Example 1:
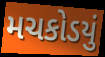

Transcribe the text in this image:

મચકોડયું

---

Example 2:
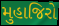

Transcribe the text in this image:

મુહાજિરો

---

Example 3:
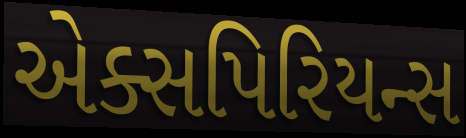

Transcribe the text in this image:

એક્સપિરિયન્સ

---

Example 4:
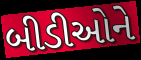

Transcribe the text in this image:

બીડીઓને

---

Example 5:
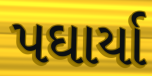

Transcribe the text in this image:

પઘાર્યા